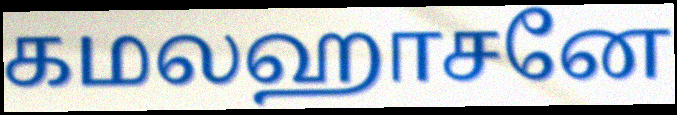
கமலஹாசனே